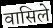
वासिले